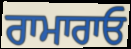
ਰਾਮਾਰਾਓ